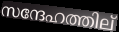
സന്ദേഹത്തില്